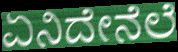
ಏನಿದೇನೆಲೆ